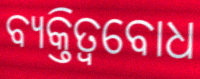
ବ୍ୟକ୍ତିତ୍ୱବୋଧ